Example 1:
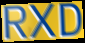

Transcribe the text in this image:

RXD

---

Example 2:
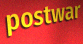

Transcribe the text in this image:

postwar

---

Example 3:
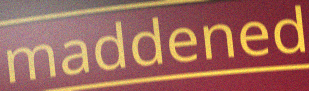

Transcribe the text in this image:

maddened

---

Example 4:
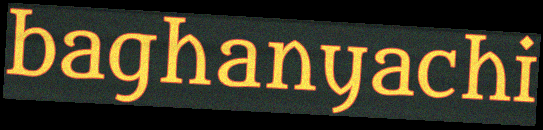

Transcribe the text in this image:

baghanyachi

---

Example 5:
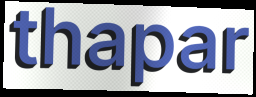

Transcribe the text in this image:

thapar